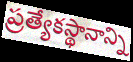
ప్రత్యేకస్థానాన్ని